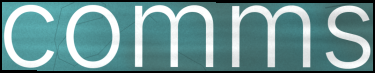
comms